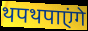
थपथपाएंगे